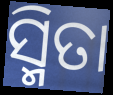
ସ୍ମିତା